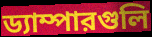
ড্যাম্পারগুলি